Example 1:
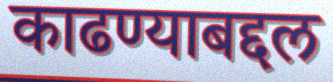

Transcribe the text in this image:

काढण्याबद्दल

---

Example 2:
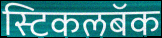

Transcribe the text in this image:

स्टिकलबॅक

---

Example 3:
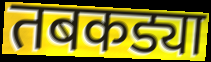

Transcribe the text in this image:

तबकड्या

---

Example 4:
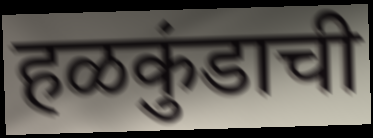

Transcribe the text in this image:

हळकुंडाची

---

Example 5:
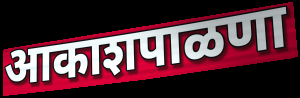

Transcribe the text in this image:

आकाशपाळणा